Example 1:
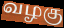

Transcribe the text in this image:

வழகு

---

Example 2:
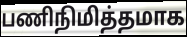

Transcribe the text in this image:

பணிநிமித்தமாக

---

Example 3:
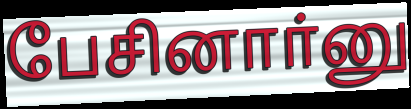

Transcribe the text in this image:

பேசினார்னு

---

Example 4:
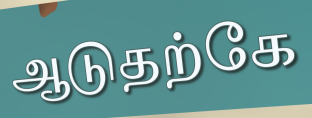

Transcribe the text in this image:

ஆடுதற்கே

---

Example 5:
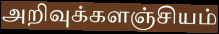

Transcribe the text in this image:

அறிவுக்களஞ்சியம்